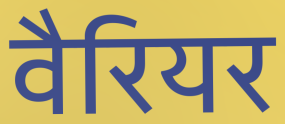
वैरियर